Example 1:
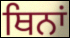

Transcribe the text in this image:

ਥਿਨਾਂ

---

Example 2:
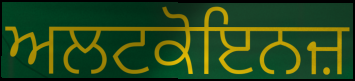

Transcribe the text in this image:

ਅਲਟਕੋਇਨਜ਼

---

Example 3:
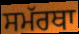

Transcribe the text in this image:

ਸਮੱਰਥਾ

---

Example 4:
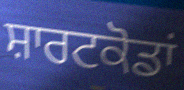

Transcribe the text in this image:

ਸ਼ਾਰਟਕੋਡਾਂ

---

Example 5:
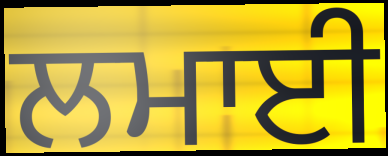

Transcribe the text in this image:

ਲਮਾਈ